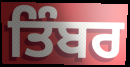
ਤਿੰਬਰ